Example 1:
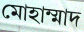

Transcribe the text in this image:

মোহাম্মাদ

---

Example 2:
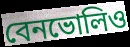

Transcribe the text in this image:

বেনভোলিও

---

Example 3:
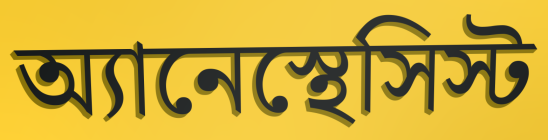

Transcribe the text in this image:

অ্যানেস্থেসিস্ট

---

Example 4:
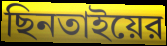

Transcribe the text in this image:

ছিনতাইয়ের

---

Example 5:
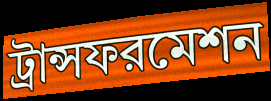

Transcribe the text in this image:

ট্রান্সফরমেশন